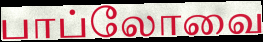
பாப்லோவை